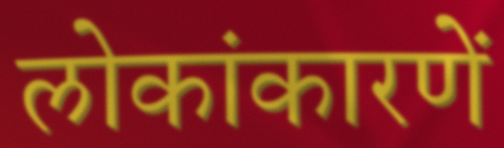
लोकांकारणें